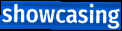
showcasing